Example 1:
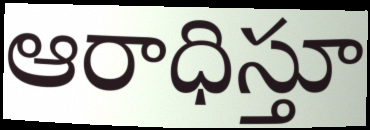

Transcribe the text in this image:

ఆరాధిస్తూ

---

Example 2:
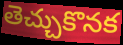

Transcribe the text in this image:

తెచ్చుకొనక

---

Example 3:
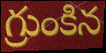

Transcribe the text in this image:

గ్రుంకిన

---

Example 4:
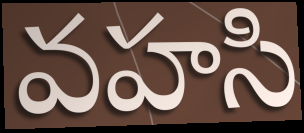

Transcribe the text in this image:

వహసి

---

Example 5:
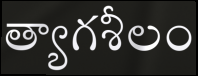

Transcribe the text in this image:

త్యాగశీలం